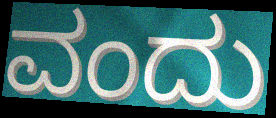
ವಂದು